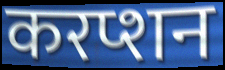
करप्‍शन